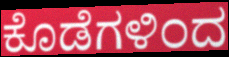
ಕೊಡೆಗಳಿಂದ